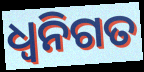
ଧ୍ୱନିଗତ